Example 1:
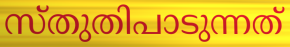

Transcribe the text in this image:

സ്തുതിപാടുന്നത്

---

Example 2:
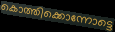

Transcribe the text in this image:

കൊത്തിക്കൊന്നോട്ടെ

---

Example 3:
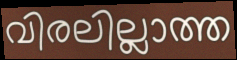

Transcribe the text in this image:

വിരലില്ലാത്ത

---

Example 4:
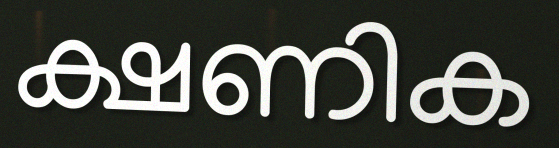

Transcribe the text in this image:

ക്ഷണിക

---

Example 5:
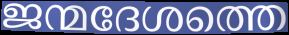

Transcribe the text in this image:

ജന്മദേശത്തെ